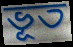
ভূত